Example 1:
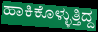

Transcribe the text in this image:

ಹಾಕಿಕೊಳ್ಳುತ್ತಿದ್ದ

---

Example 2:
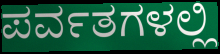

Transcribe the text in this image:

ಪರ್ವತಗಳಲ್ಲಿ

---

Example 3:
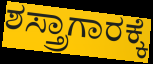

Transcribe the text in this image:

ಶಸ್ತ್ರಾಗಾರಕ್ಕೆ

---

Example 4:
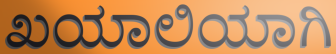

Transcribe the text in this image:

ಖಯಾಲಿಯಾಗಿ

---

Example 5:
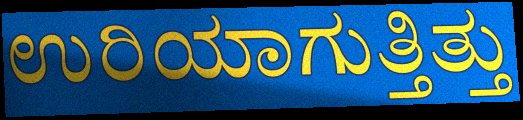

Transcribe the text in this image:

ಉರಿಯಾಗುತ್ತಿತ್ತು